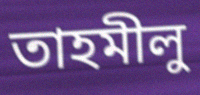
তাহমীলু